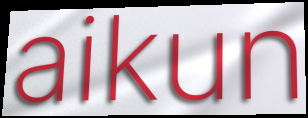
aikun